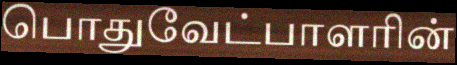
பொதுவேட்பாளரின்